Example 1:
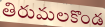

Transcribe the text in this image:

తిరుమలకొండ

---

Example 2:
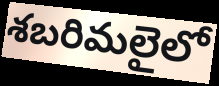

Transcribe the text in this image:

శబరిమలైలో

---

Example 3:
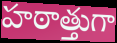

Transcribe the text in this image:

హఠాత్తుగా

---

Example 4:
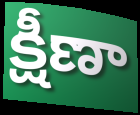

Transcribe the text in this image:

క్షీణా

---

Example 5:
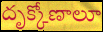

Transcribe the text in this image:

దృక్కోణాలూ